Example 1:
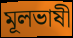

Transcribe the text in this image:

মূলভাষী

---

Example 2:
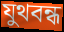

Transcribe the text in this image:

যুথবন্ধ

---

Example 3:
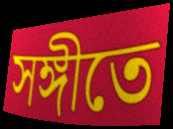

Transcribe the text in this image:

সঙ্গীতে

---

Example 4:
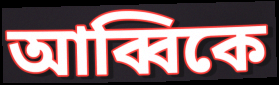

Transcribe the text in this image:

আব্বিকে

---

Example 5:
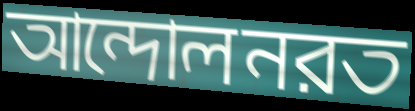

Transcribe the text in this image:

আন্দোলনরত